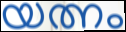
യത്നം